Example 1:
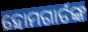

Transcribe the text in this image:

ହୋମଗାର୍ଡଙ୍କ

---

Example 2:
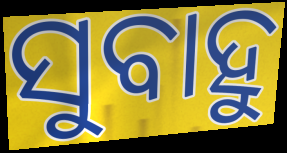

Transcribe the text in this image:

ସୁବାହୁ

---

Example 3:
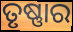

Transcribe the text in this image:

ତୃଷ୍ଣାର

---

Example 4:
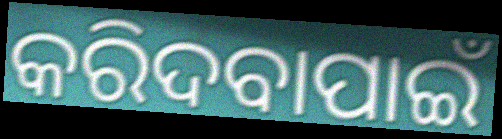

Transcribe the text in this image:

କରିଦବାପାଇଁ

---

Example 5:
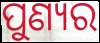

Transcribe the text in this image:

ପୁଣ୍ୟର